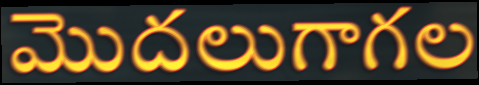
మొదలుగాగల